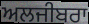
ਅਲਜੀਬਰਾ